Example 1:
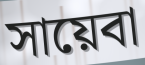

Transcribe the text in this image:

সায়েবা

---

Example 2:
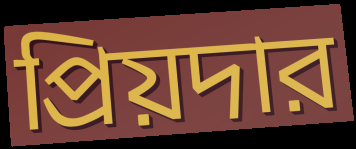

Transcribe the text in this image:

প্রিয়দার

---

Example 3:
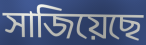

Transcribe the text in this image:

সাজিয়েছে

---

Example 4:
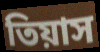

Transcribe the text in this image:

তিয়াস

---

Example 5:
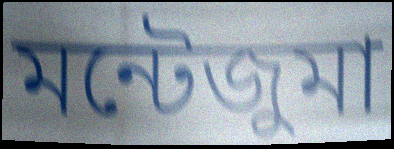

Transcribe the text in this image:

মন্টেজুমা